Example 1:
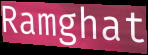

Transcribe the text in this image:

Ramghat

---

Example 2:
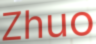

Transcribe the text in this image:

Zhuo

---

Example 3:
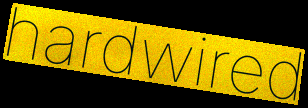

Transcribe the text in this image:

hardwired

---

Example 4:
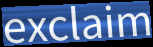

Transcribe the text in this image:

exclaim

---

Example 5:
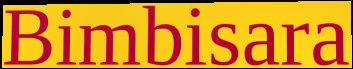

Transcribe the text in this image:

Bimbisara